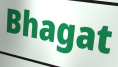
Bhagat